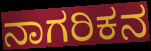
ನಾಗರಿಕನ